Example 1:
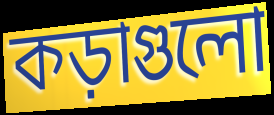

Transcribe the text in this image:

কড়াগুলো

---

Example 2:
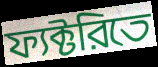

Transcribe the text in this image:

ফ্যক্টরিতে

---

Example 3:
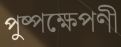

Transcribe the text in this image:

পুষ্পক্ষেপণী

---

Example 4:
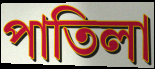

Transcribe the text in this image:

পাতিলা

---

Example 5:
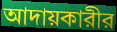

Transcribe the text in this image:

আদায়কারীর